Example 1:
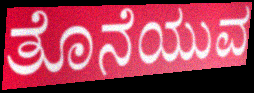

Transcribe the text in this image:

ತೊನೆಯುವ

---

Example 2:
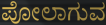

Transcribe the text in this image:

ಪೋಲಾಗುವ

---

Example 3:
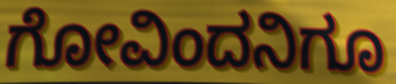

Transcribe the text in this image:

ಗೋವಿಂದನಿಗೂ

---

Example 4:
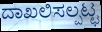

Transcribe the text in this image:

ದಾಖಲಿಸಲ್ಪಟ್ಟ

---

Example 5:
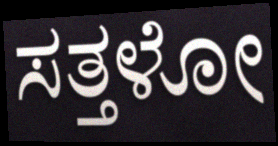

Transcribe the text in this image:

ಸತ್ತಳೋ